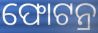
ଫୋଟନ୍ର